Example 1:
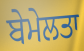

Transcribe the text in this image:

ਬੇਮੇਲਤਾ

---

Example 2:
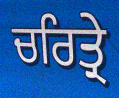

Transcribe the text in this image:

ਚਰਿਤ੍ਰੇ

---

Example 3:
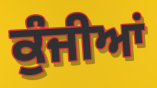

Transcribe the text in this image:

ਕੁੰਜੀਆਂ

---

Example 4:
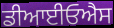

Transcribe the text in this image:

ਡੀਆਈਓਐਸ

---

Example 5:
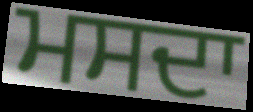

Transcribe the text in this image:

ਮਸਦਾ